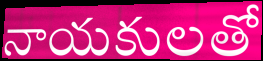
నాయకులతో